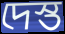
দেস্ত